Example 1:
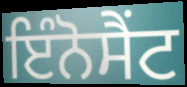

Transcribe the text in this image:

ਇੰਨੋਸੈਂਟ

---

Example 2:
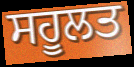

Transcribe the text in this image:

ਸਹੂਲਤ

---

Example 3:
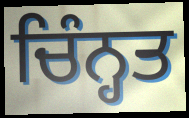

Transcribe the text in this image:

ਚਿੰਨ੍ਹਤ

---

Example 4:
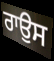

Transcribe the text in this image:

ਰਾਉਸ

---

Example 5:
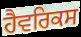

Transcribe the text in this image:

ਹੈਵਰਿਕਸ